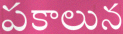
పకాలున